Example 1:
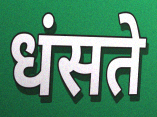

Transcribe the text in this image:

धंसते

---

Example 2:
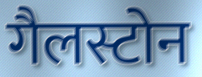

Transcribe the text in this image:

गैलस्टोन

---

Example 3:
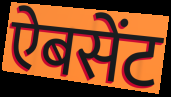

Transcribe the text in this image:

ऐबसेंट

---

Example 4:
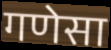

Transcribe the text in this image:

गणेसा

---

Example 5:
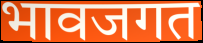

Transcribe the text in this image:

भावजगत